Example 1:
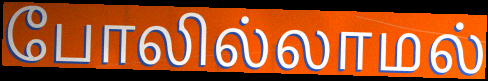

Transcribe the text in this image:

போலில்லாமல்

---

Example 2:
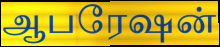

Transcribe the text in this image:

ஆபரேஷன்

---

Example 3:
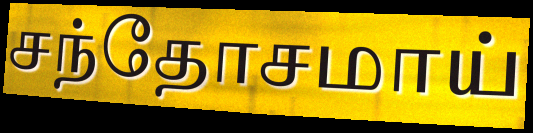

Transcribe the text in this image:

சந்தோசமாய்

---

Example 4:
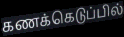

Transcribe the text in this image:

கணக்கெடுப்பில்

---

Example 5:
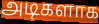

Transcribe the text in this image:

அடிகளாக